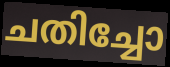
ചതിച്ചോ